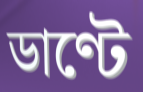
ডাণ্টে